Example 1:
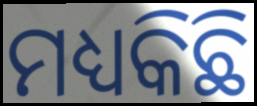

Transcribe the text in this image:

ମଧ୍ୟକିଛି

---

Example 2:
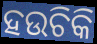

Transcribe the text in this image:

ହଉଚିକି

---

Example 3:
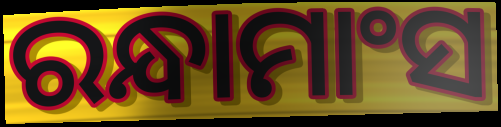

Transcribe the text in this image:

ରନ୍ଧାମାଂସ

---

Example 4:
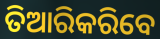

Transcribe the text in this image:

ତିଆରିକରିବେ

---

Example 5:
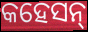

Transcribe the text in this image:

କହେସନ୍